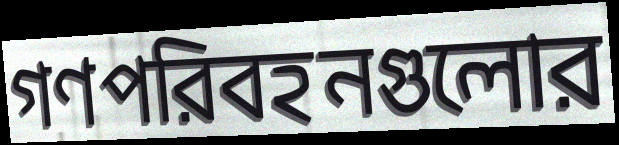
গণপরিবহনগুলোর